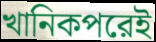
খানিকপরেই